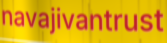
navajivantrust